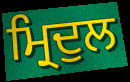
ਮ੍ਰਿਦੁਲ